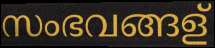
സംഭവങ്ങള്